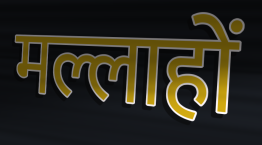
मल्लाहों